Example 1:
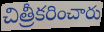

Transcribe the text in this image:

చిత్రీకరించారు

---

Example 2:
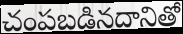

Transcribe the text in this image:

చంపబడినదానితో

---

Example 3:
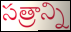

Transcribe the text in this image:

సత్రాన్ని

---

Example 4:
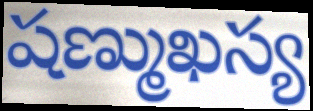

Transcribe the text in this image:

షణ్ముఖస్య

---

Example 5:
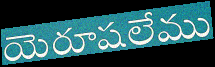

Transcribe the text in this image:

యెరూషలేము